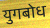
युगबोध